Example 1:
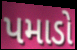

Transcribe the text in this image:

પમાડો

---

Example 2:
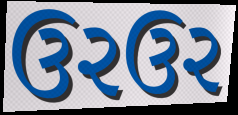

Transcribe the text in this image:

ઉરઉર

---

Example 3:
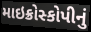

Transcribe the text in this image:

માઇક્રોસ્કોપીનું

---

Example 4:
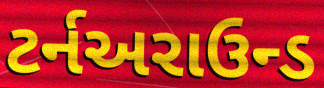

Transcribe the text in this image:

ટર્નઅરાઉન્ડ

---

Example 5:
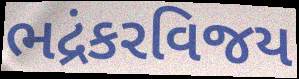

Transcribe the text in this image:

ભદ્રંકરવિજય